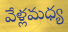
వేళ్లమధ్య